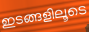
ഇടങ്ങളിലൂടെ